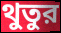
থুতুর